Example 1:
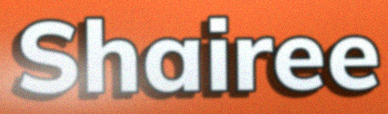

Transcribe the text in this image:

Shairee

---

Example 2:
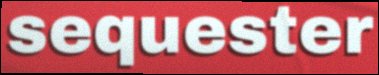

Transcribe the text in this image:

sequester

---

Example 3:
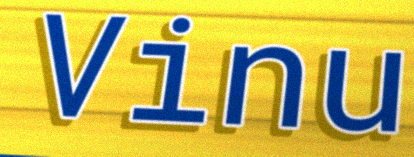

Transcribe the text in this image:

Vinu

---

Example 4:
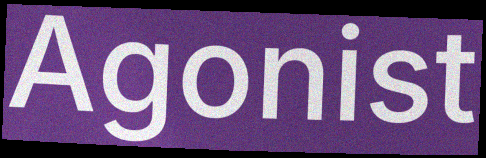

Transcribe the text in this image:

Agonist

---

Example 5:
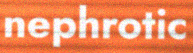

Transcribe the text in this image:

nephrotic